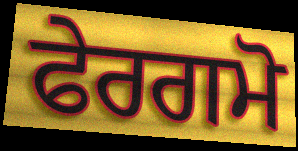
ਫੇਰਗਮੋ